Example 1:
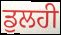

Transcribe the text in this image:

ਡੁਲਹੀ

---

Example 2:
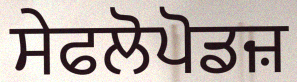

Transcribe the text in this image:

ਸੇਫਲੋਪੋਡਜ਼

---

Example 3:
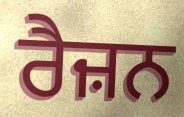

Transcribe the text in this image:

ਰੈਜ਼ਨ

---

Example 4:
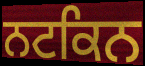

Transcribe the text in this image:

ਨਟਕਿਨ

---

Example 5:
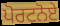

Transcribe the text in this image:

ਪੋਰਟਨੋਏ